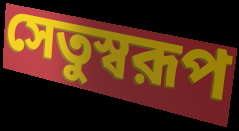
সেতুস্বরূপ